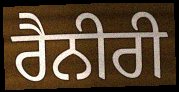
ਰੈਨੀਰੀ